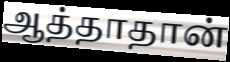
ஆத்தாதான்